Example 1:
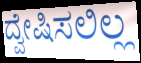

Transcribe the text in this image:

ದ್ವೇಷಿಸಲಿಲ್ಲ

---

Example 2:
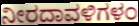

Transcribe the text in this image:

ನೀರದಾವಳಿಗಳಂ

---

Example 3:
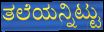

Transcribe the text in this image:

ತಲೆಯನ್ನಿಟ್ಟು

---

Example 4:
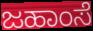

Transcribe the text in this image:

ಜಹಾಂಸೆ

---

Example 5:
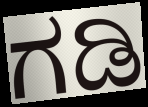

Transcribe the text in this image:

ಗಡಿ